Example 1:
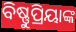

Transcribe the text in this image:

ବିଷ୍ଣୁପ୍ରିୟାଙ୍କ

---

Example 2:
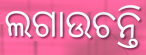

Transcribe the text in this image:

ଲଗାଉଚନ୍ତି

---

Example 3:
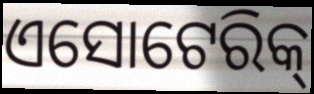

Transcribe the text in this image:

ଏସୋଟେରିକ୍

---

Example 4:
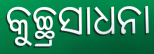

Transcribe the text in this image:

କୁଚ୍ଛ୍ରସାଧନା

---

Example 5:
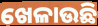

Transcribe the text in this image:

ଖେଳାଉଛି